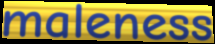
maleness